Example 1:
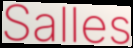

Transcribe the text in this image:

Salles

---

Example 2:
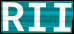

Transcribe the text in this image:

RII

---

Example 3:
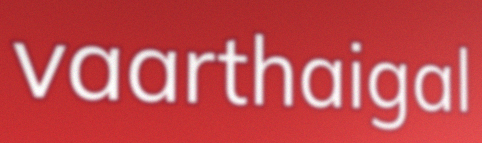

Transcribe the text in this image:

vaarthaigal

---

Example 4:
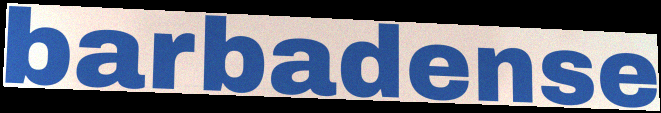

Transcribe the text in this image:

barbadense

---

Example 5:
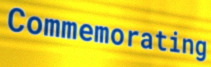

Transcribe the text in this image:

Commemorating